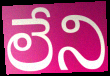
లేని